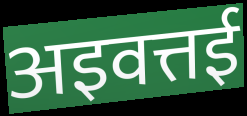
अइवत्तई